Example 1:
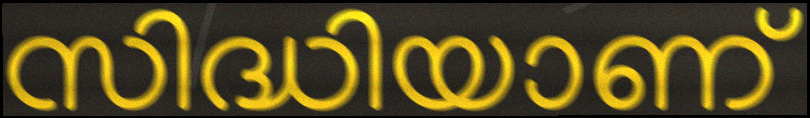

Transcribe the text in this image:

സിദ്ധിയാണ്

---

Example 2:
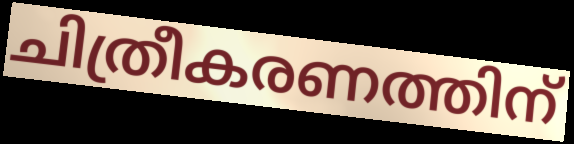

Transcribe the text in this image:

ചിത്രീകരണത്തിന്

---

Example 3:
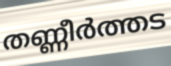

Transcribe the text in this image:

തണ്ണീർത്തട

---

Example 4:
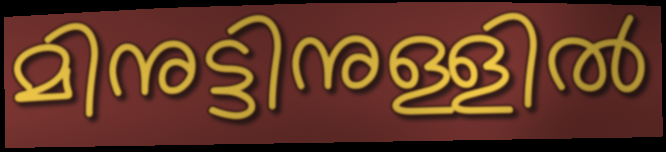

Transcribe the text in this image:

മിനുട്ടിനുള്ളിൽ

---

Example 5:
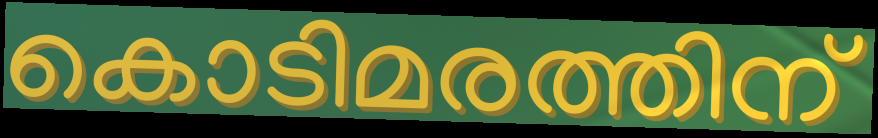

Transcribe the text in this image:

കൊടിമരത്തിന്